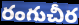
రంగుచీర